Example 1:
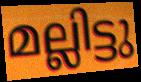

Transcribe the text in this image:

മല്ലിട്ടു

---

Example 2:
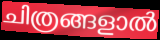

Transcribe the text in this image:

ചിത്രങ്ങളാൽ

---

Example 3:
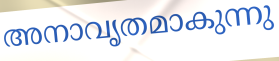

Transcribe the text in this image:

അനാവൃതമാകുന്നു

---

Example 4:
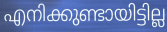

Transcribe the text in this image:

എനിക്കുണ്ടായിട്ടില്ല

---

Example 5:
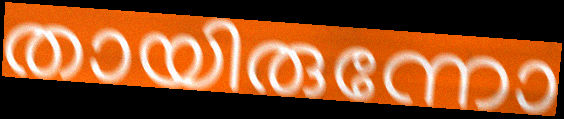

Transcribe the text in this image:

തായിരുന്നോ